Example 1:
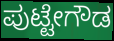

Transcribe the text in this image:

ಪುಟ್ಟೇಗೌಡ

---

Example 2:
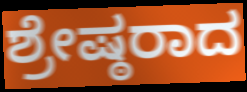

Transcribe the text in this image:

ಶ್ರೇಷ್ಠರಾದ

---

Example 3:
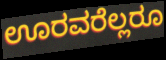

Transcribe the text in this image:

ಊರವರೆಲ್ಲರೂ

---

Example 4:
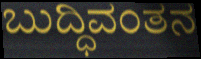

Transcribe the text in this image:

ಬುದ್ಧಿವಂತನ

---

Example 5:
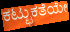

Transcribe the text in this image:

ಕಟ್ಟುಕತೆಯೇ